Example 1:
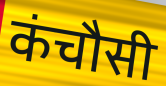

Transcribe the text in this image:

कंचौसी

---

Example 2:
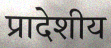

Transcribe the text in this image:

प्रादेशीय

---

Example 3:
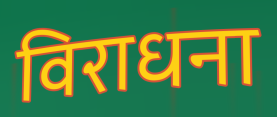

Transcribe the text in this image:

विराधना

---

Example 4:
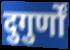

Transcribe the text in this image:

दुगुर्णों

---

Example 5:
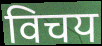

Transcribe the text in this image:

विचय